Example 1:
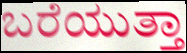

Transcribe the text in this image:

ಬರೆಯುತ್ತಾ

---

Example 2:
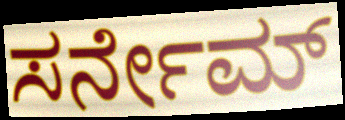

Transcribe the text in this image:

ಸರ್ನೇಮ್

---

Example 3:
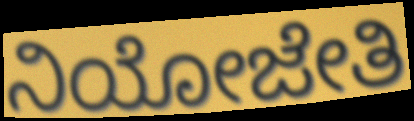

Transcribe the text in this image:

ನಿಯೋಜೇತಿ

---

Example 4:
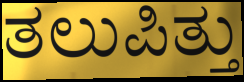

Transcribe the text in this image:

ತಲುಪಿತ್ತು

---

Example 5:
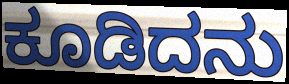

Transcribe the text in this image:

ಕೂಡಿದನು